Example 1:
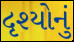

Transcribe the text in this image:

દૃશ્યોનું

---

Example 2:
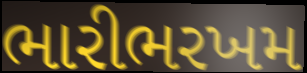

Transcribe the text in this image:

ભારીભરખમ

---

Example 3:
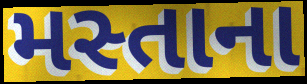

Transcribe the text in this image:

મસ્તાના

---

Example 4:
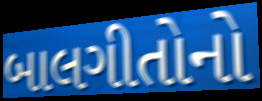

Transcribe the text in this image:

બાલગીતોનો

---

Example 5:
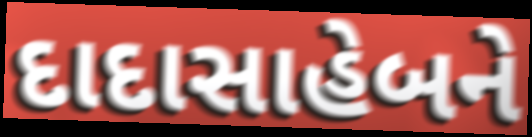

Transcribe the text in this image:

દાદાસાહેબને